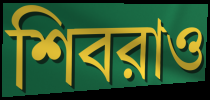
শিবরাও